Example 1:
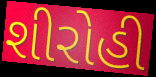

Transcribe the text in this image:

શીરોહી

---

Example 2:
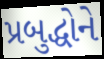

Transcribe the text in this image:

પ્રબુદ્ધોને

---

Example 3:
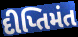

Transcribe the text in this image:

દીપ્તિમંત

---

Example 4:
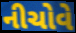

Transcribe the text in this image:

નીચોવે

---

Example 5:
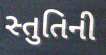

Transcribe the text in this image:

સ્તુતિની